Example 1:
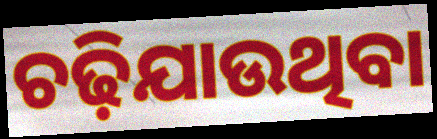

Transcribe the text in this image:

ଚଢ଼ିଯାଉଥିବା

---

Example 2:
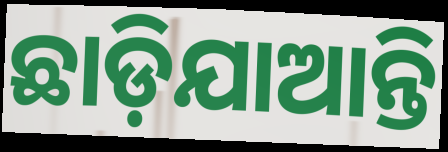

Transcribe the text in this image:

ଛାଡ଼ିଯାଆନ୍ତି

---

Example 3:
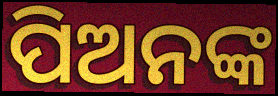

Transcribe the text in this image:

ପିଅନଙ୍କ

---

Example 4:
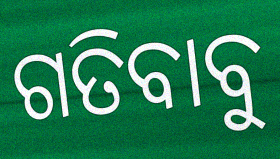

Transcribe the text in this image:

ଗତିବାବୁ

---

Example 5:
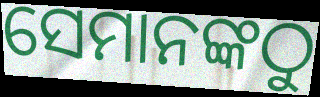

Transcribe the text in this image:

ସେମାନଙ୍କଠୁ